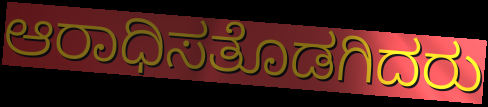
ಆರಾಧಿಸತೊಡಗಿದರು